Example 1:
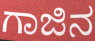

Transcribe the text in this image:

ಗಾಜಿನ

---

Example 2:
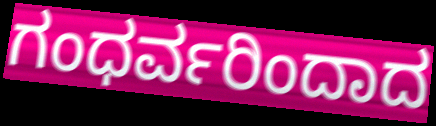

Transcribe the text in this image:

ಗಂಧರ್ವರಿಂದಾದ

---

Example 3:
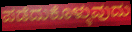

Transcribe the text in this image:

ಪಡೆದುಕೊಳ್ಳುವುದು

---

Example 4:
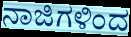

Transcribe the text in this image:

ನಾಜಿಗಳಿಂದ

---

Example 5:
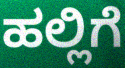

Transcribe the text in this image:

ಹಲ್ಲಿಗೆ